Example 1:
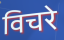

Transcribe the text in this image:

विचरे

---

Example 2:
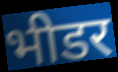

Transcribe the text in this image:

भीडर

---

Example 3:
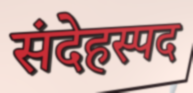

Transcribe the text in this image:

संदेहस्पद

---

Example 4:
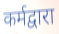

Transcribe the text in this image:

कर्मद्वारा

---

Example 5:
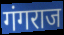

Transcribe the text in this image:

गंगराज